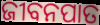
ଜୀବନପାତ